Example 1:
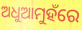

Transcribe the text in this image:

ଅଧୁଆମୁହଁରେ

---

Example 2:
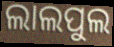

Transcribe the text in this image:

ଲାଲପୁଲ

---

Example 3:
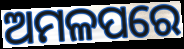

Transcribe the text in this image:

ଅମଳପରେ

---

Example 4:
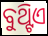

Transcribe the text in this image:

ବୁଥ୍ଟିଏ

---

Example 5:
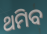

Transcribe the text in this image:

ଥମିବ